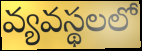
వ్యవస్థలలో